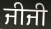
ਜੀਜੀ